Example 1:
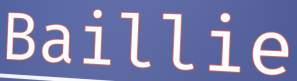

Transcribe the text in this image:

Baillie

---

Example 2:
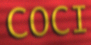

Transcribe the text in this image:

COCI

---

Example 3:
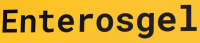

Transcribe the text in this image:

Enterosgel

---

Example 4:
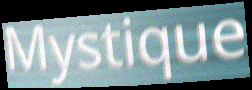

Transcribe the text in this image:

Mystique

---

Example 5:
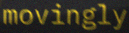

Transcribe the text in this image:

movingly